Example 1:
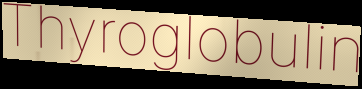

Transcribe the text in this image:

Thyroglobulin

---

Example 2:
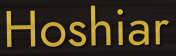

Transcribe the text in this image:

Hoshiar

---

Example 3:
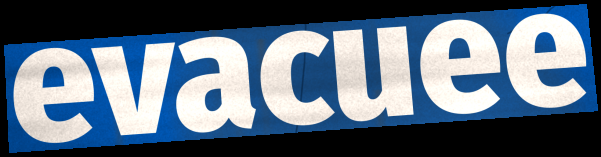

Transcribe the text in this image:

evacuee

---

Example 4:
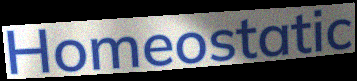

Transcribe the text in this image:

Homeostatic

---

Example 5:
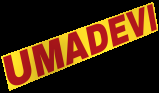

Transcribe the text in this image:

UMADEVI